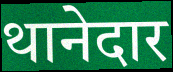
थानेदार